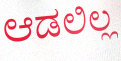
ಆಡಲಿಲ್ಲ